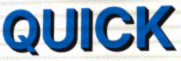
QUICK